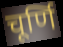
चूर्णि